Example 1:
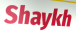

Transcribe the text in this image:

Shaykh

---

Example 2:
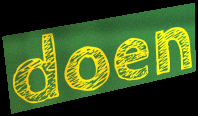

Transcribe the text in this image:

doen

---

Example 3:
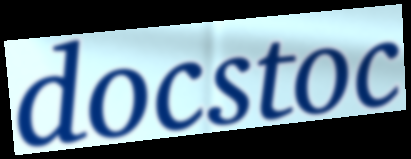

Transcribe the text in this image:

docstoc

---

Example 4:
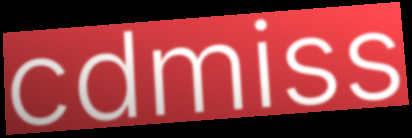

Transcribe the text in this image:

cdmiss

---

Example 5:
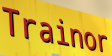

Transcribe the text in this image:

Trainor